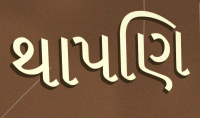
થાપણિ